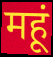
महूं